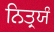
ਨਿਤ੍ਰਯੰ